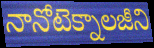
నానోటెక్నాలజీని